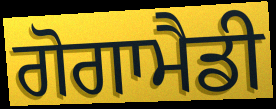
ਗੋਗਾਮੈਡੀ